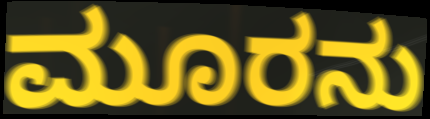
ಮೂರನು